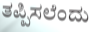
ತಪ್ಪಿಸಲೆಂದು